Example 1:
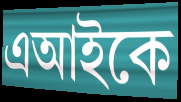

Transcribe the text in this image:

এআইকে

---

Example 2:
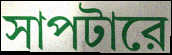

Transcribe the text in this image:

সাপটারে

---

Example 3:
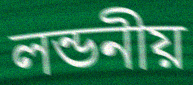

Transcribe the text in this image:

লন্ডনীয়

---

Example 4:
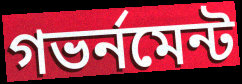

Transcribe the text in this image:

গভর্নমেন্ট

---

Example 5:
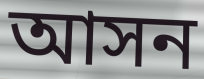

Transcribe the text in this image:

আসন